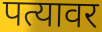
पत्यावर